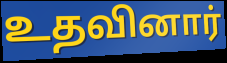
உதவினார்